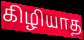
கிழியாத